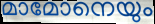
മാമോനെയും